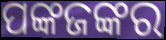
ପଙ୍କଜଙ୍କର